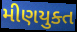
મીણયુક્ત